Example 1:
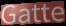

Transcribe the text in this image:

Gatte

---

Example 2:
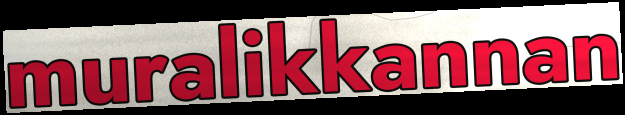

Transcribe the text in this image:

muralikkannan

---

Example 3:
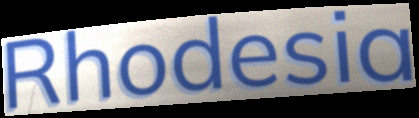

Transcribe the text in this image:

Rhodesia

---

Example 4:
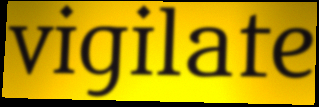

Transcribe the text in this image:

vigilate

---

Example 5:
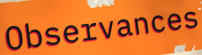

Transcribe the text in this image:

Observances